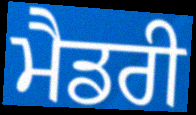
ਮੈਡਰੀ